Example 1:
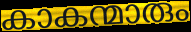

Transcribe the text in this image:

കാകന്മാരും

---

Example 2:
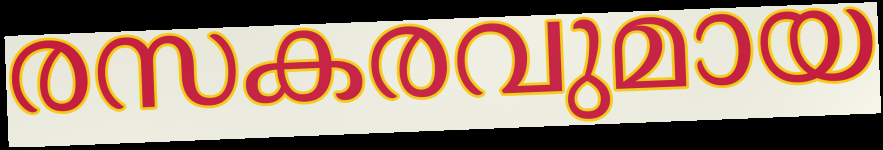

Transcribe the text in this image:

രസകരവുമായ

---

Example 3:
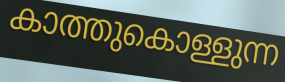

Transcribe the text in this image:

കാത്തുകൊള്ളുന്ന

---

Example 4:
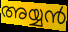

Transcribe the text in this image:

അയ്യൻ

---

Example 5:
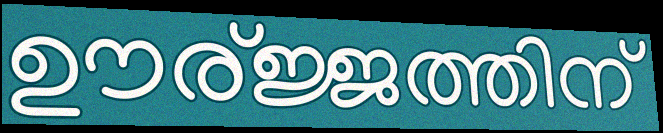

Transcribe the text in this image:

ഊര്ജ്ജത്തിന്